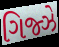
ગિજ્ઝે